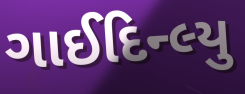
ગાઈદિન્લ્યુ